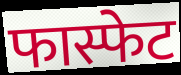
फास्फेट